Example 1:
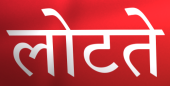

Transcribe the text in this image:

लोटते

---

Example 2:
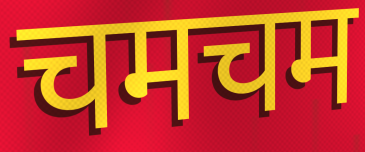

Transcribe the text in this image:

चमचम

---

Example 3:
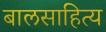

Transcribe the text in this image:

बालसाहित्य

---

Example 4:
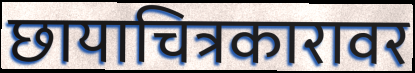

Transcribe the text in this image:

छायाचित्रकारावर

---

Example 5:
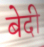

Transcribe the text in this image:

बेदी